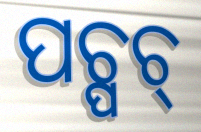
ପଚ୍ପଚ୍